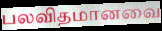
பலவிதமானவை